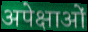
अपेक्षाओं